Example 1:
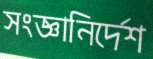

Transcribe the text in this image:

সংজ্ঞানির্দেশ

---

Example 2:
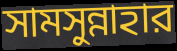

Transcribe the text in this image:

সামসুন্নাহার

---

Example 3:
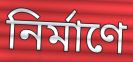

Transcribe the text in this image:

নির্মাণে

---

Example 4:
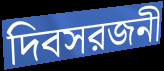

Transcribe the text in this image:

দিবসরজনী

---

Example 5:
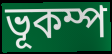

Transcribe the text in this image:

ভূকম্প